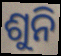
ଶୁନି